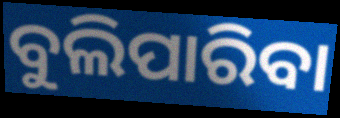
ବୁଲିପାରିବା